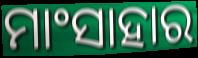
ମାଂସାହାର